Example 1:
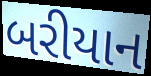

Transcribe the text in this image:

બરીયાન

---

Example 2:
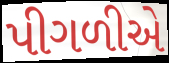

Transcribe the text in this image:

પીગળીએ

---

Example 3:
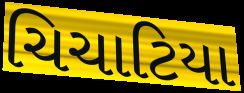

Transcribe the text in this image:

ચિચાટિયા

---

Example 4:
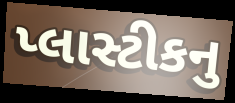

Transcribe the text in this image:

પ્લાસ્ટીકનુ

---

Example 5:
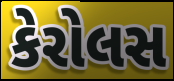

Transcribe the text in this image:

કેરોલસ